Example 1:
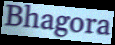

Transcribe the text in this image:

Bhagora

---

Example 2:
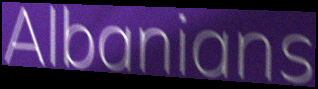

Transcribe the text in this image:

Albanians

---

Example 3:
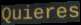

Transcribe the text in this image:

Quieres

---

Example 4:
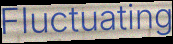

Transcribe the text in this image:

Fluctuating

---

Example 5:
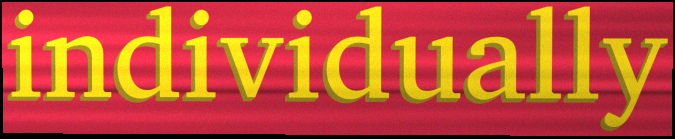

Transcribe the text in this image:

individually